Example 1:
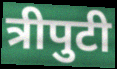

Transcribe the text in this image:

त्रीपुटी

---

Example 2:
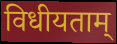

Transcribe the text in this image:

विधीयताम्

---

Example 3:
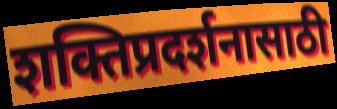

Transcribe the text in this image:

शक्तिप्रदर्शनासाठी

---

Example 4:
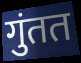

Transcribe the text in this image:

गुंतत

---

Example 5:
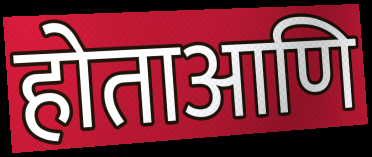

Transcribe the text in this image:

होताआणि